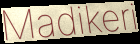
Madikeri